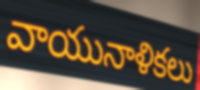
వాయునాళికలు